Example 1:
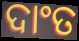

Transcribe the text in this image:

ଦାଂତ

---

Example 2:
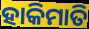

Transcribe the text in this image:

ହାକିମାତି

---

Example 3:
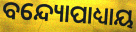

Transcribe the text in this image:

ବନ୍ଦ୍ୟୋପାଧ୍ୟାୟ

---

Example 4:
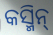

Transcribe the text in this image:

କସ୍ମିନ୍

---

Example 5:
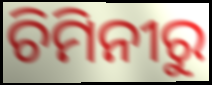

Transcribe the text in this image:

ଚିମିନୀରୁ